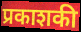
प्रकाशकी